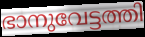
ഭാനുവേട്ടത്തി